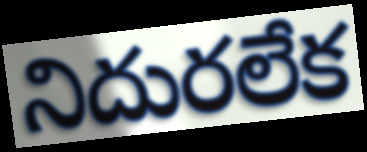
నిదురలేక